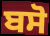
ਬਸੋ